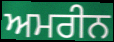
ਅਮਰੀਨ